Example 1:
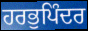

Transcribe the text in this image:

ਹਰਭੁਪਿੰਦਰ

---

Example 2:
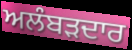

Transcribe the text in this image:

ਅਲੰਬੜਦਾਰ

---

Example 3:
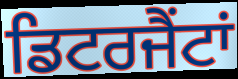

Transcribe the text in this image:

ਡਿਟਰਜੈਂਟਾਂ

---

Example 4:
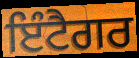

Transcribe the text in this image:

ਇੰਟੈਗਰ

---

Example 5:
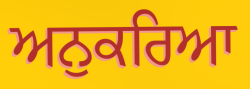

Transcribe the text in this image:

ਅਨੁਕਰਿਆ